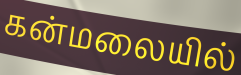
கன்மலையில்